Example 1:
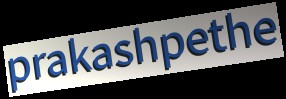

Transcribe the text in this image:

prakashpethe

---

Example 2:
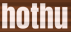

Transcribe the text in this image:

hothu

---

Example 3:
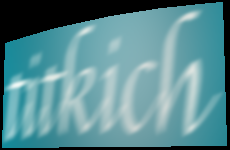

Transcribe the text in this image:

titkich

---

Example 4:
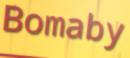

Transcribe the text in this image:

Bomaby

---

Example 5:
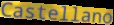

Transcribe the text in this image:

Castellano